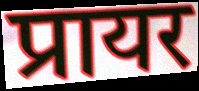
प्रायर